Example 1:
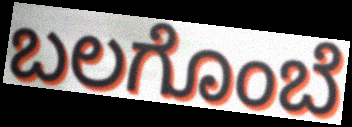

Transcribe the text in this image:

ಬಲಗೊಂಬೆ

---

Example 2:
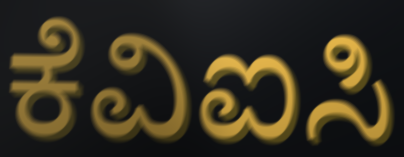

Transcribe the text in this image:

ಕೆವಿಐಸಿ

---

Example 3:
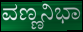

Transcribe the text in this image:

ವಣ್ಣನಿಭಾ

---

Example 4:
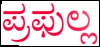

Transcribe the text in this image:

ಪ್ರಫುಲ್ಲ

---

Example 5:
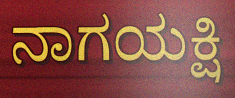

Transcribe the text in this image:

ನಾಗಯಕ್ಷಿ